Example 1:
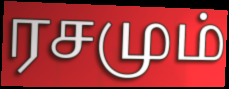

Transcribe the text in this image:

ரசமும்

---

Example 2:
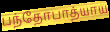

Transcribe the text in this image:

பந்தோபாத்யாய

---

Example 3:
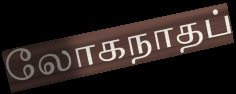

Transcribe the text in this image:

லோகநாதப்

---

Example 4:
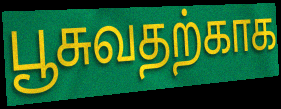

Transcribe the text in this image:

பூசுவதற்காக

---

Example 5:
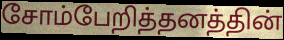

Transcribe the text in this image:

சோம்பேறித்தனத்தின்